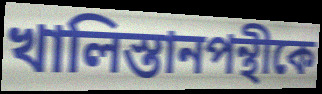
খালিস্তানপন্থীকে